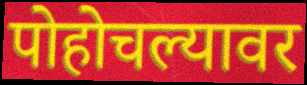
पोहोचल्यावर